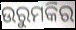
ଉରୁମକିର